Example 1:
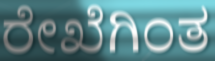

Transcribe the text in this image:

ರೇಖೆಗಿಂತ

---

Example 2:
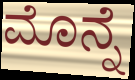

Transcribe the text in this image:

ಮೊನ್ನೆ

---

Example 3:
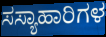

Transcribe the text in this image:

ಸಸ್ಯಾಹಾರಿಗಳ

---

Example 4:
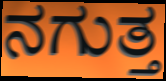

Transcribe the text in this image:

ನಗುತ್ತ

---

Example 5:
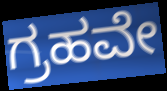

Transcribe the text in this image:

ಗ್ರಹವೇ